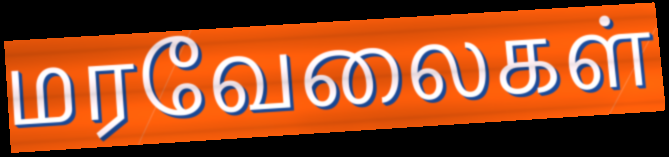
மரவேலைகள்